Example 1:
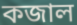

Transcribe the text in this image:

কজাল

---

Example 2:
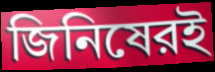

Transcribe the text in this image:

জিনিষেরই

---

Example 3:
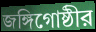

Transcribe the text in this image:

জঙ্গিগোষ্ঠীর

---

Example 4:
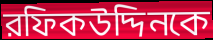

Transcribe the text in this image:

রফিকউদ্দিনকে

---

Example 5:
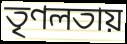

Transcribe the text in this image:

তৃণলতায়